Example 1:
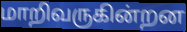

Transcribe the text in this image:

மாறிவருகின்றன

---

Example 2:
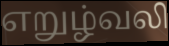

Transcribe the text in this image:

எறுழ்வலி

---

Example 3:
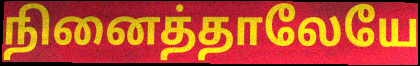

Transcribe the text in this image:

நினைத்தாலேயே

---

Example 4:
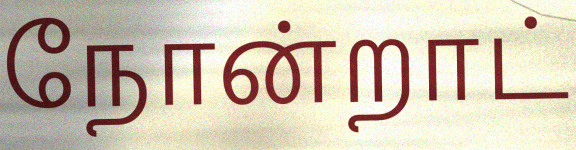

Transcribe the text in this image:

நோன்றாட்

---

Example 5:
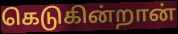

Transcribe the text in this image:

கெடுகின்றான்